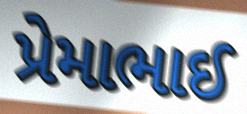
પ્રેમાભાઈ